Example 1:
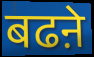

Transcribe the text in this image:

बढऩे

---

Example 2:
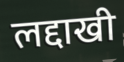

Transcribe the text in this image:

लद्दाखी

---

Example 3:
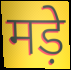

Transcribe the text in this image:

मड़े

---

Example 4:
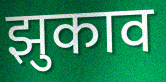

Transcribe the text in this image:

झुकाव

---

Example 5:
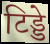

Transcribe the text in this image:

टिड्डे